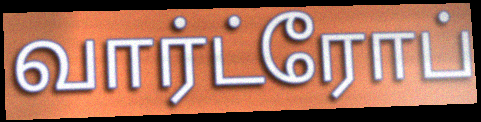
வார்ட்ரோப்